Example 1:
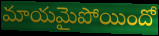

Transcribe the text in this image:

మాయమైపోయిందో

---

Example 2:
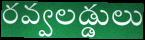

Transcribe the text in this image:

రవ్వలడ్డులు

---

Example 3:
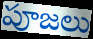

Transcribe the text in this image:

పూజలు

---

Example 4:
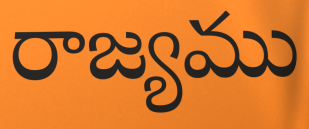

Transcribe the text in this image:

రాజ్యము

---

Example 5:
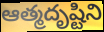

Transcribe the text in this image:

ఆత్మదృష్టిని